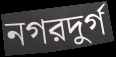
নগরদুর্গ